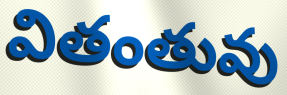
వితంతువు